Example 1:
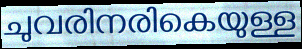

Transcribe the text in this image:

ചുവരിനരികെയുള്ള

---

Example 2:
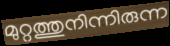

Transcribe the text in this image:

മുറ്റത്തുനിന്നിരുന്ന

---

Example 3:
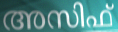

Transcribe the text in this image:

അസിഫ്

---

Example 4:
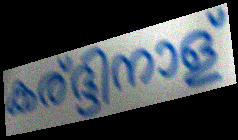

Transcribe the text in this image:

കര്ദ്ദിനാള്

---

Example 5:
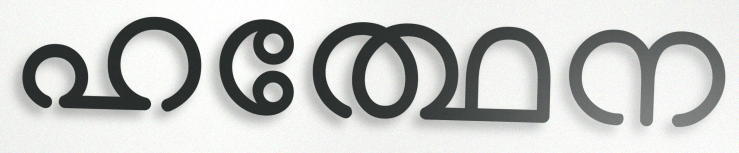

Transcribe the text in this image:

ഹത്ഥേന